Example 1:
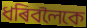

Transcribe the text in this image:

ধৰিবলৈকে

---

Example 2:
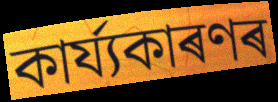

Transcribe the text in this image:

কাৰ্য্যকাৰণৰ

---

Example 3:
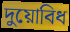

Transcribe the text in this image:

দুয়োবিধ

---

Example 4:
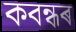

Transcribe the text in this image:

কবন্ধৰ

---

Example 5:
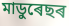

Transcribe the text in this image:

মাডুৰেছৰ